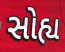
સોહ્ય